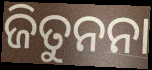
ଜିତୁନନା